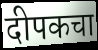
दीपकचा